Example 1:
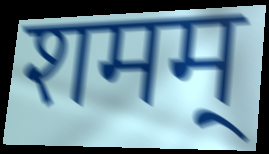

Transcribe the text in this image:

शमम्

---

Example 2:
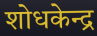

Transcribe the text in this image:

शोधकेन्द्र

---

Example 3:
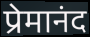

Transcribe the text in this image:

प्रेमानंद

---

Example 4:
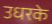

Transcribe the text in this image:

उधरके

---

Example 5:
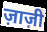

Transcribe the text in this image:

ज़ाज़ी